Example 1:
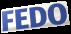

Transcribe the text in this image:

FEDO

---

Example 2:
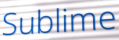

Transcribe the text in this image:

Sublime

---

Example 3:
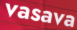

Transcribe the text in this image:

vasava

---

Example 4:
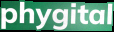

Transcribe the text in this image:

phygital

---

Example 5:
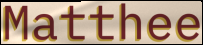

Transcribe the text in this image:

Matthee